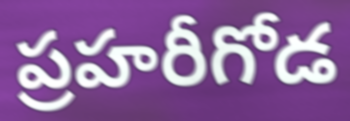
ప్రహరీగోడ